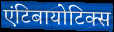
एंटिबायोटिक्स